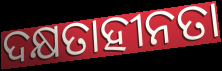
ଦକ୍ଷତାହୀନତା